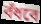
বঁধবে